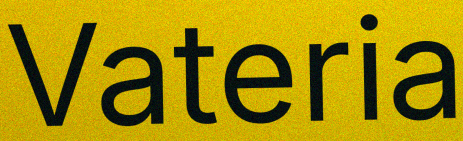
Vateria